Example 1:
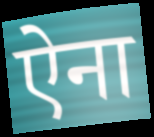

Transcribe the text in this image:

ऐना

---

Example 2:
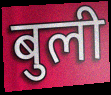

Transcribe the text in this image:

बुली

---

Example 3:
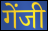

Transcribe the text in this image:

गेंजी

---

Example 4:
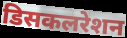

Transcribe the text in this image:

डिसकलरेशन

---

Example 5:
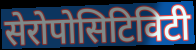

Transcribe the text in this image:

सेरोपोसिटिविटी